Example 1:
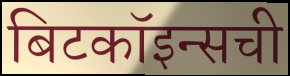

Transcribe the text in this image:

बिटकॉइन्सची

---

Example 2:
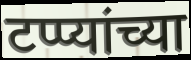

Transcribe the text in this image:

टप्प्यांच्या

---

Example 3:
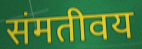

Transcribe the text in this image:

संमतीवय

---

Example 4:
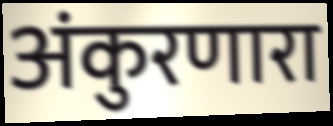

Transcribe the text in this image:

अंकुरणारा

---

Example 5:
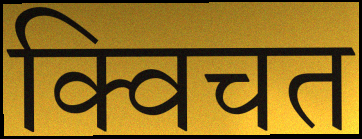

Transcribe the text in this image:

क्विचत